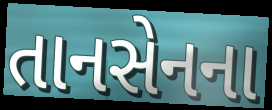
તાનસેનના